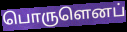
பொருளெனப்